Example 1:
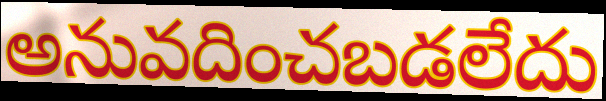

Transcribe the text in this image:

అనువదించబడలేదు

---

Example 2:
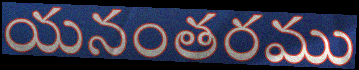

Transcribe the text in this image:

యనంతరము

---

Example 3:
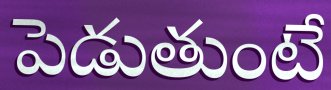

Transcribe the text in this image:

పెడుతుంటే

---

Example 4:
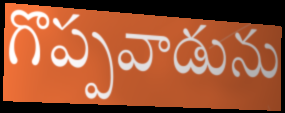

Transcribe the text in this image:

గొప్పవాడును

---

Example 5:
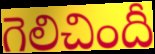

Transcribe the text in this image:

గెలిచిందీ